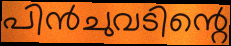
പിൻചുവടിന്റെ